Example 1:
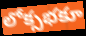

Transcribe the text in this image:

లోక్సభకూ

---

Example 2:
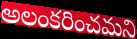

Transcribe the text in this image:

అలంకరించమని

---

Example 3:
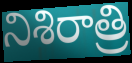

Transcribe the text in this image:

నిశిరాత్రి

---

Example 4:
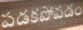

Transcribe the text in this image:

పడకపోవడం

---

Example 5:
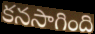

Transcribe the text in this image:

కనసాగింది